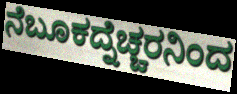
ನೆಬೂಕದ್ನೆಚ್ಚರನಿಂದ